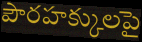
పౌరహక్కులపై